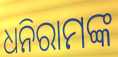
ଧନିରାମଙ୍କ